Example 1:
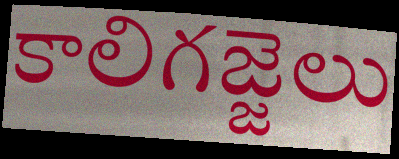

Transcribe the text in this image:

కాలిగజ్జెలు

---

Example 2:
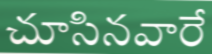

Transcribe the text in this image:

చూసినవారే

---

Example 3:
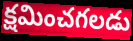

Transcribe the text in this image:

క్షమించగలడు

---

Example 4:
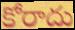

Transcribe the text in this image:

కోరాదు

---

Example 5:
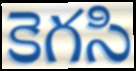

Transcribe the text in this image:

కెగసి